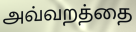
அவ்வறத்தை